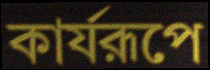
কার্যরূপে